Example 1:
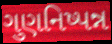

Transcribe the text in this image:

ગુણનિષ્પન્ન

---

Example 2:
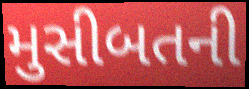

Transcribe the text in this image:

મુસીબતની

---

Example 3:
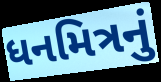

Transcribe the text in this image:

ધનમિત્રનું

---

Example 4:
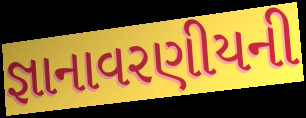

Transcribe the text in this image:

જ્ઞાનાવરણીયની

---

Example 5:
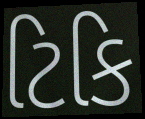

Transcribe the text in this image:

ટિકિ